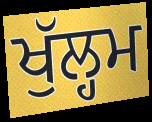
ਖੁੱਲ੍ਹਮ